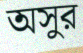
অসুর